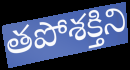
తపోశక్తిని